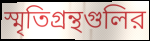
স্মৃতিগ্রন্থগুলির